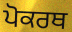
ਪੋਕਰਥ